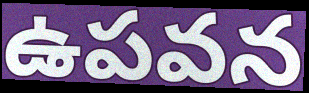
ఉపవన